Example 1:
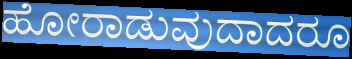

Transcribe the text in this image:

ಹೋರಾಡುವುದಾದರೂ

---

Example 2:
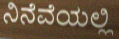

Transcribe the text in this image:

ನಿನೆವೆಯಲ್ಲಿ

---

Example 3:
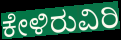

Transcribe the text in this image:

ಕೇಳಿರುವಿರಿ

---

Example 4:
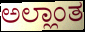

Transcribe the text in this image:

ಅಲ್ಲಾಂತ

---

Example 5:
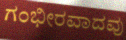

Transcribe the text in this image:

ಗಂಭೀರವಾದವು